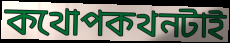
কথোপকথনটাই